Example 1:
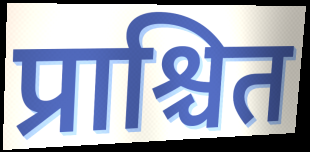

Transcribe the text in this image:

प्राश्चित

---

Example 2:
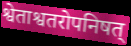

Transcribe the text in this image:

श्वेताश्वतरोपनिषत्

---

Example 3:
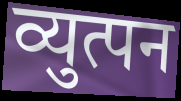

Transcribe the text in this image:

व्युत्पन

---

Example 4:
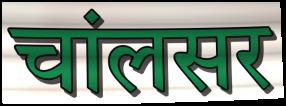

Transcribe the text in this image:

चांलसर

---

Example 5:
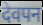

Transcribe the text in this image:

देवपन